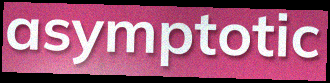
asymptotic